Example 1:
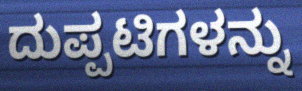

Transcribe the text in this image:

ದುಪ್ಪಟಿಗಳನ್ನು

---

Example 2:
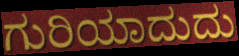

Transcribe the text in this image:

ಗುರಿಯಾದುದು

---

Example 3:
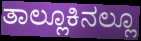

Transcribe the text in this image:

ತಾಲ್ಲೂಕಿನಲ್ಲೂ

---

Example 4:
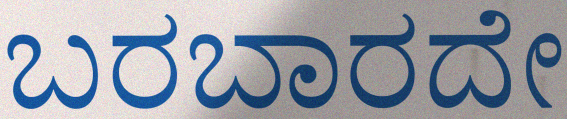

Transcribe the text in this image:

ಬರಬಾರದೇ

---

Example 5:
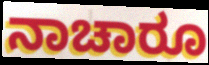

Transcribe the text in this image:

ನಾಚಾರೂ